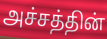
அச்சத்தின்